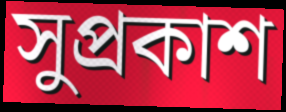
সুপ্রকাশ